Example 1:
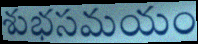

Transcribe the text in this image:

శుభసమయం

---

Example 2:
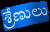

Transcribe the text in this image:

శ్రేణులు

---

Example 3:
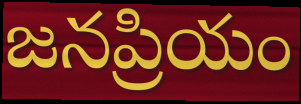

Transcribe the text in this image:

జనప్రియం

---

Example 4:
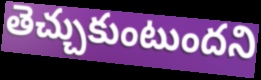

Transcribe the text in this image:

తెచ్చుకుంటుందని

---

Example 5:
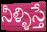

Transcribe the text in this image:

నీళ్ళిస్తే